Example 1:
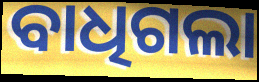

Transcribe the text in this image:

ବାଧିଗଲା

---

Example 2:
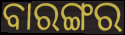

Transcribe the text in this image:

ବାରଙ୍ଗର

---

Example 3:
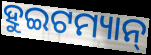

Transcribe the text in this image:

ହୁଇଟମ୍ୟାନ୍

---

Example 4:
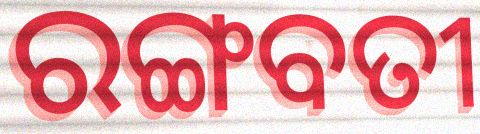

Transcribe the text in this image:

ରଙ୍ଗବତୀ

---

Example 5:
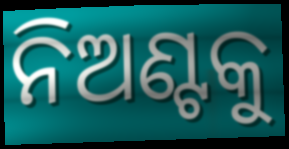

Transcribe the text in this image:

ନିଅଣ୍ଟକୁ